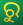
ରୁ